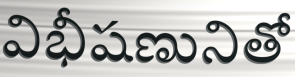
విభీషణునితో